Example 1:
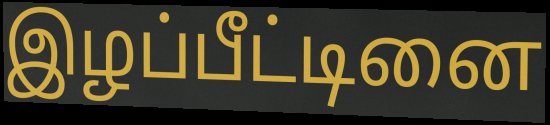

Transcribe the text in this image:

இழப்பீட்டினை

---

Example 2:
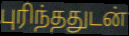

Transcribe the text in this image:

புரிந்ததுடன்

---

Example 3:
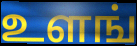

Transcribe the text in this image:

உளங்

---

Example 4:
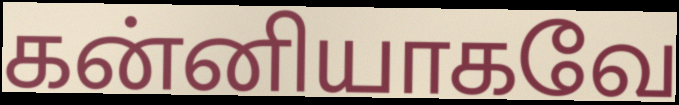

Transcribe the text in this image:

கன்னியாகவே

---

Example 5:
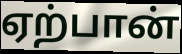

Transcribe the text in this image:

ஏற்பான்